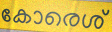
കോരെശ്